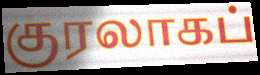
குரலாகப்